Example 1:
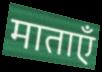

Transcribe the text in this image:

माताएँ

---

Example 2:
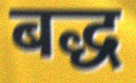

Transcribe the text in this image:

बद्ध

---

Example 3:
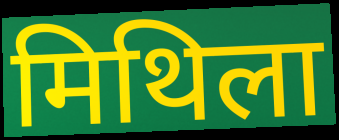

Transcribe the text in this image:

मिथिला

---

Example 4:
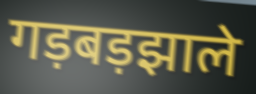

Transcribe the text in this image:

गड़बड़झाले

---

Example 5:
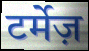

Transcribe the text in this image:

टर्मेज़